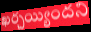
ఖర్చయ్యిందని